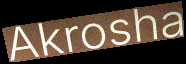
Akrosha